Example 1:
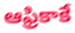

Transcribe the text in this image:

ఆఫ్రికాకే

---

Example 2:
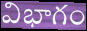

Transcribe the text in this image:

విభాగం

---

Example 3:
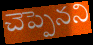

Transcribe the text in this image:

చెప్పెనని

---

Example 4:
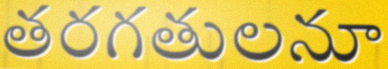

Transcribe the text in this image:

తరగతులనూ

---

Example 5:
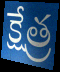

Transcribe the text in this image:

క్షేత్ర